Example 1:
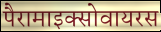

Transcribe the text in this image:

पैरामाइक्सोवायरस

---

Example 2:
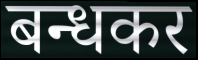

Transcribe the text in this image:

बन्धकर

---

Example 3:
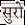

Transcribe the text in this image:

सुरो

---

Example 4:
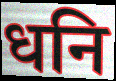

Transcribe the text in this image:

धनि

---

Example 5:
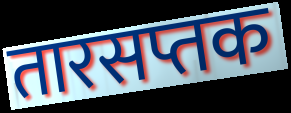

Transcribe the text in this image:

तारसप्तक